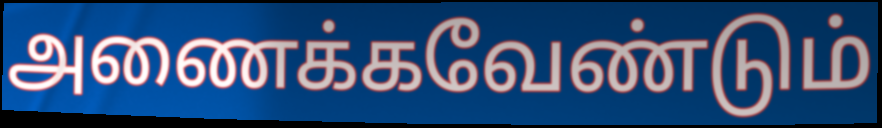
அணைக்கவேண்டும்